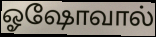
ஓஷோவால்